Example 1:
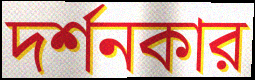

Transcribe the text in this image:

দর্শনকার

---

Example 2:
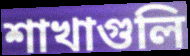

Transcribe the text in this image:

শাখাগুলি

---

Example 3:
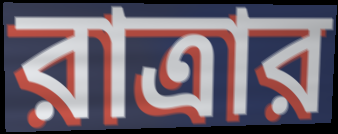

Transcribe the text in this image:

রাত্রার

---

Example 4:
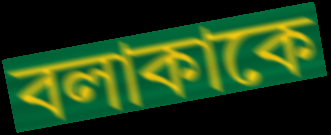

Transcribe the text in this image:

বলাকাকে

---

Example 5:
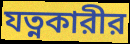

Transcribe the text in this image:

যত্নকারীর